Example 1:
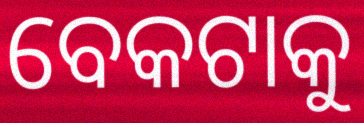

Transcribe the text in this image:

ବେକଟାକୁ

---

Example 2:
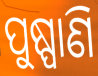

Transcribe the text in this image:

ପୁଷ୍ପାଣି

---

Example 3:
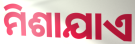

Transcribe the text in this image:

ମିଶାଯାଏ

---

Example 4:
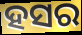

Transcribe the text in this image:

ହସର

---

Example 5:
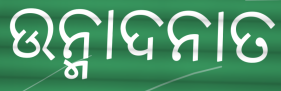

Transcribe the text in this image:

ଉନ୍ମାଦନାତ